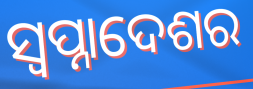
ସ୍ଵପ୍ନାଦେଶର